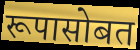
रूपासोबत